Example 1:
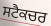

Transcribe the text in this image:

ਸਟੈਕਚਰ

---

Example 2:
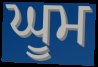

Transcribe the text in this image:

ਘੂਮ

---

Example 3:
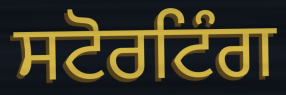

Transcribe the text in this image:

ਸਟੋਰਟਿੰਗ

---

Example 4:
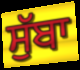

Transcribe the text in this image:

ਸੁੱਬਾ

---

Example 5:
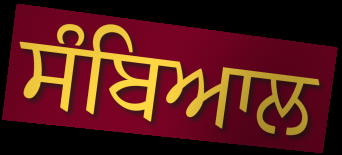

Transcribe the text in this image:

ਸੰਬਿਆਲ